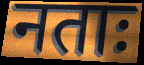
नताः